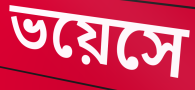
ভয়েসে